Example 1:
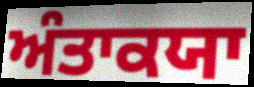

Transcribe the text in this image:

ਅੰਤਾਕਯਾ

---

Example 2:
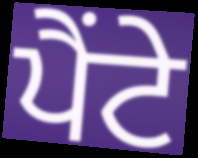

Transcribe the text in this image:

ਪੈਂਟੇ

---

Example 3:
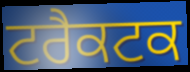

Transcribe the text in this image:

ਟਰੈਕਟਕ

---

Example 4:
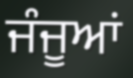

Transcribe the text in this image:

ਜੰਜੂਆਂ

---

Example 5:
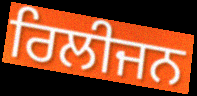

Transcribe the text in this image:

ਰਿਲੀਜਨ